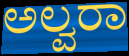
ಅಲ್ವರಾ